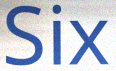
Six